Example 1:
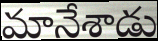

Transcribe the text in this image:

మానేశాడు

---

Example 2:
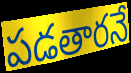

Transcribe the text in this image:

పడతారనే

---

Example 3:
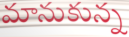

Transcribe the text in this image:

మానుకున్న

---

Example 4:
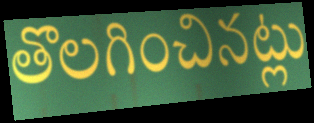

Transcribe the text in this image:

తొలగించినట్లు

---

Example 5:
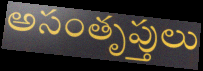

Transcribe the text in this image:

అసంతృప్తులు